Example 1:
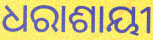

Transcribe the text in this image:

ଧରାଶାୟୀ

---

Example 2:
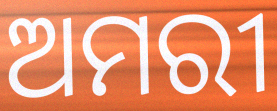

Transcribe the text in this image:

ଅମରୀ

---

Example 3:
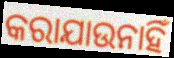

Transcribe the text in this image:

କରାଯାଉନାହିଁ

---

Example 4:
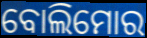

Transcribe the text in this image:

ବୋଲିମୋର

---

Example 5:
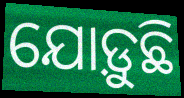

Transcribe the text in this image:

ଯୋଡ଼ୁଛି